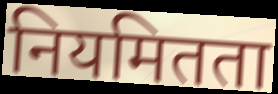
नियमितता